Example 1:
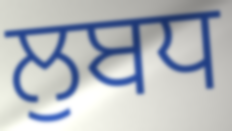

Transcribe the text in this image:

ਲੁਬਧ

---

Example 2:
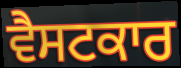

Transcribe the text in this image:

ਵੈਸਟਕਾਰ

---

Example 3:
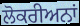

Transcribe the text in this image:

ਲੋਕਰੀਅਨਾਂ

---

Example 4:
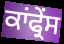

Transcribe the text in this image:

ਕਾਂਫ੍ਰੇਂਸ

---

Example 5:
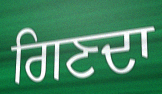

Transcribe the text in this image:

ਗਿਣਦਾ